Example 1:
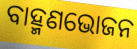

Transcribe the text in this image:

ବାହ୍ମଣଭୋଜନ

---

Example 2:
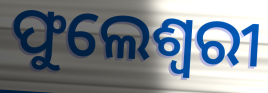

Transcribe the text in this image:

ଫୁଲେଶ୍ବରୀ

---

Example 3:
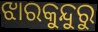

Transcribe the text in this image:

ଝାରକୁନ୍ଦୁରୁ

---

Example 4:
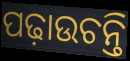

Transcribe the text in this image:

ପଢ଼ାଉଚନ୍ତି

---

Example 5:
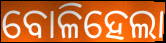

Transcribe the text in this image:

ବୋଳିହେଲା